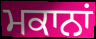
ਮਕਾਨਾਂ